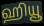
ஹியூ